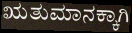
ಋತುಮಾನಕ್ಕಾಗಿ